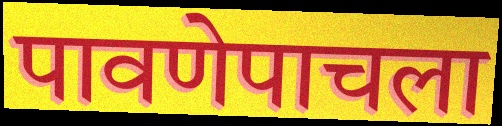
पावणेपाचला